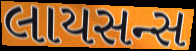
લાયસન્સ